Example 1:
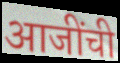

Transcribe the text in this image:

आजींची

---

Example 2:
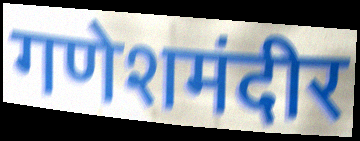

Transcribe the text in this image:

गणेशमंदीर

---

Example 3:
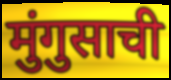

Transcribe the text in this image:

मुंगुसाची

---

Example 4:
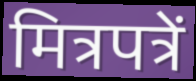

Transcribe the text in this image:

मित्रपत्रें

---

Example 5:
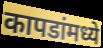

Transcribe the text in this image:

कापडांमध्ये